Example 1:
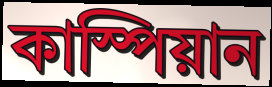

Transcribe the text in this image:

কাস্পিয়ান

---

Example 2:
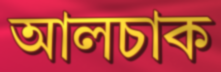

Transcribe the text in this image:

আলচাক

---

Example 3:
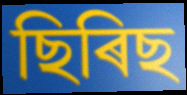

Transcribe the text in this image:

ছিৰিছ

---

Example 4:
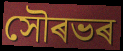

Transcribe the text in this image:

সৌৰভৰ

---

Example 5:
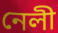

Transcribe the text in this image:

নেলী